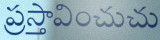
ప్రస్తావించుచు